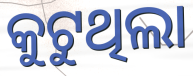
କୁଟୁଥିଲା